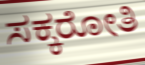
ಸಕ್ಕರೋತಿ